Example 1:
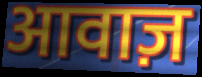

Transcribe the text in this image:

आवाज़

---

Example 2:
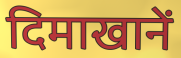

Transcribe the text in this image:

दिमाखानें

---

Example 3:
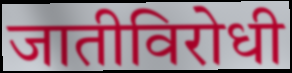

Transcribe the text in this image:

जातीविरोधी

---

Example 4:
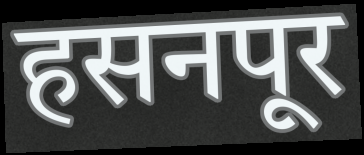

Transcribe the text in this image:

हसनपूर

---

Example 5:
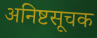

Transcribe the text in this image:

अनिष्टसूचक